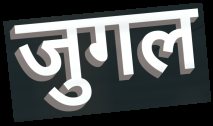
जुगल